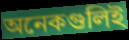
অনেকগুলিই